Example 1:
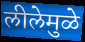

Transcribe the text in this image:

लीलेमुळे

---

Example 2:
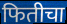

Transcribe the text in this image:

फितीचा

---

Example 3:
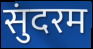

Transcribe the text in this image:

सुंदरम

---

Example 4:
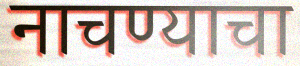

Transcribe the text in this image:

नाचण्याचा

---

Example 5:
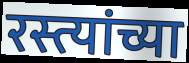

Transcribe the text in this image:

रस्त्यांच्या